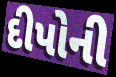
દીપોની